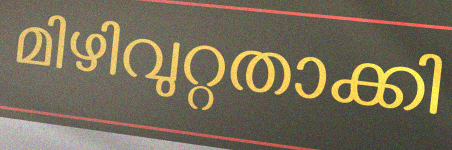
മിഴിവുറ്റതാക്കി